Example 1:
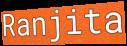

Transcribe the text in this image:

Ranjita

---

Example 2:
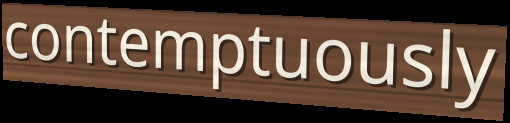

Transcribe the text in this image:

contemptuously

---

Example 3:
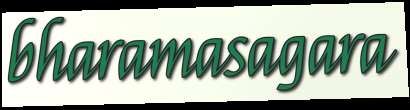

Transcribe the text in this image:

bharamasagara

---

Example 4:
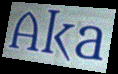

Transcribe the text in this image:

Aka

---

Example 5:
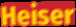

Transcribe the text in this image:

Heiser